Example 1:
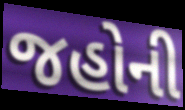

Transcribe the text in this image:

જહોની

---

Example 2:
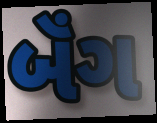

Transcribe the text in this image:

બૅંગ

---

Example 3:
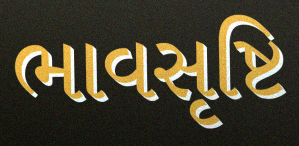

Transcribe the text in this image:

ભાવસૃષ્ટિ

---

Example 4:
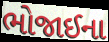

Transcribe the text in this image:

ભોજાઈના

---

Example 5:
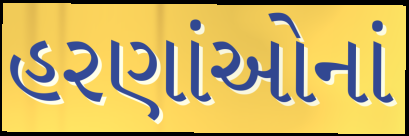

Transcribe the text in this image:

હરણાંઓનાં